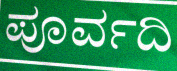
ಪೂರ್ವದಿ